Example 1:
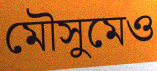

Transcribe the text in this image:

মৌসুমেও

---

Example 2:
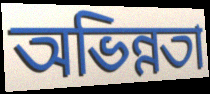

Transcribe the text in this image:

অভিন্নতা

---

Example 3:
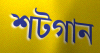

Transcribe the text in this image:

শটগান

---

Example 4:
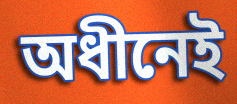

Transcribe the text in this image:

অধীনেই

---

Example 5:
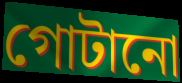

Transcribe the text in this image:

গোটানো